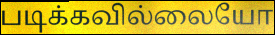
படிக்கவில்லையோ